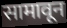
सामावून